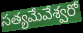
సత్యమేవేశ్వరో